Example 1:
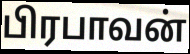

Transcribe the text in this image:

பிரபாவன்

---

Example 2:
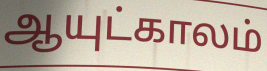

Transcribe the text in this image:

ஆயுட்காலம்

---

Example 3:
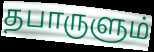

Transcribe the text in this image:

தபாருளும்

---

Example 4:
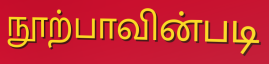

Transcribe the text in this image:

நூற்பாவின்படி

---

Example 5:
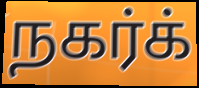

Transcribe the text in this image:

நகர்க்